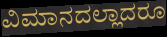
ವಿಮಾನದಲ್ಲಾದರೂ